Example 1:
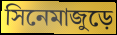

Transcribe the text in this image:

সিনেমাজুড়ে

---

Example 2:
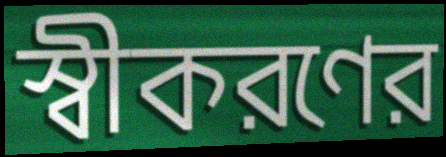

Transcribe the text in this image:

স্বীকরণের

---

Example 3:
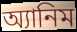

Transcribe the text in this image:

অ্যানিম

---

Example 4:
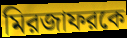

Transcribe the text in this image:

মিরজাফরকে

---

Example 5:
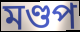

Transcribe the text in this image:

মণ্ডপ